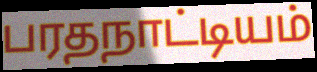
பரதநாட்டியம்